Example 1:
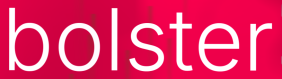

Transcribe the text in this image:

bolster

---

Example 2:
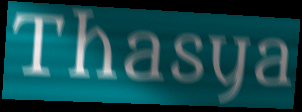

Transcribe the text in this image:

Thasya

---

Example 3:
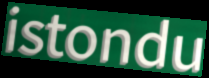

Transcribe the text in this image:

istondu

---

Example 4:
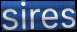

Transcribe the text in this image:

sires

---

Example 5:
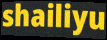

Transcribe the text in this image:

shailiyu